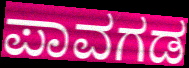
ಪಾವಗಡ